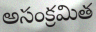
అసంక్రమిత